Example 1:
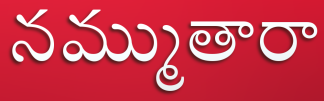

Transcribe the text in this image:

నమ్ముతారా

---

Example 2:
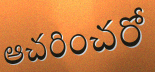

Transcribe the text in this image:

ఆచరించరో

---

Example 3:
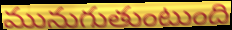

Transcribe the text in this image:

మునుగుతుంటుంది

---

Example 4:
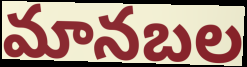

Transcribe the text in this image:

మానబల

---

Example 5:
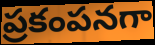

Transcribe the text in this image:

ప్రకంపనగా